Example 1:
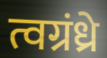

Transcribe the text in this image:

त्वग्रंध्रे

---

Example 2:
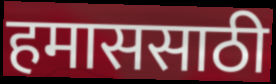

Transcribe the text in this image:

हमाससाठी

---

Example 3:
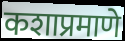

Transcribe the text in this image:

कशाप्रमाणे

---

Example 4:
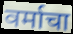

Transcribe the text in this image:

वर्माचा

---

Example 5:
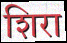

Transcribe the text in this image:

शिरा